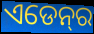
ଏଡେନ୍‍ର